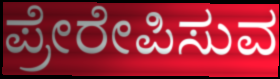
ಪ್ರೇರೇಪಿಸುವ